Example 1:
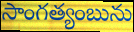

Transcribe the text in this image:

సాంగత్యంబును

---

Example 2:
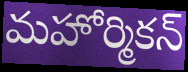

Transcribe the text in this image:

మహోర్మికన్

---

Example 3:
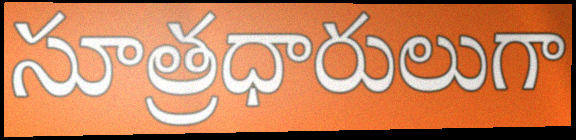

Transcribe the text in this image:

సూత్రధారులుగా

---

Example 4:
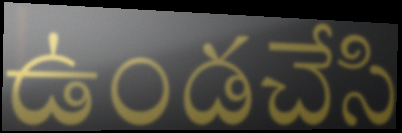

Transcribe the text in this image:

ఉండచేసి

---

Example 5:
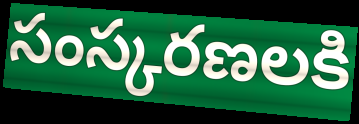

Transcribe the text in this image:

సంస్కరణలకి